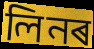
লিনৰ